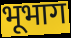
भूभाग